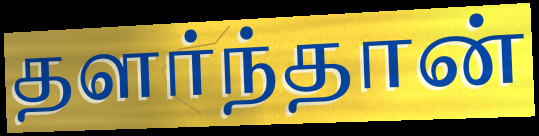
தளர்ந்தான்